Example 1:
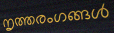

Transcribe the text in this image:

നൃത്തരംഗങ്ങൾ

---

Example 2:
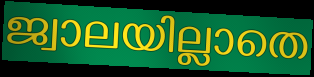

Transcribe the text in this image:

ജ്വാലയില്ലാതെ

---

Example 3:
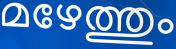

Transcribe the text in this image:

മഴേത്തും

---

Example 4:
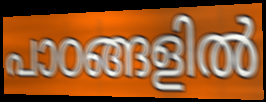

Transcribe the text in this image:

പാഠങ്ങളിൽ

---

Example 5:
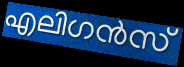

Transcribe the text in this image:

എലിഗൻസ്